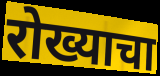
रोख्याचा